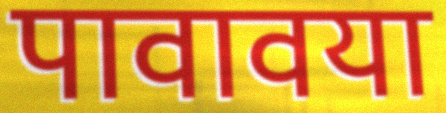
पावावया